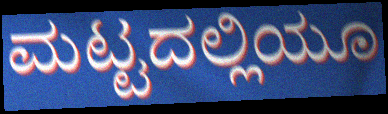
ಮಟ್ಟದಲ್ಲಿಯೂ